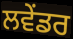
ਲਵੇਂਡਰ